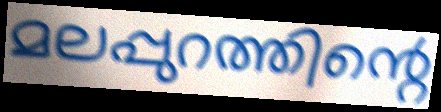
മലപ്പുറത്തിന്റെ